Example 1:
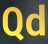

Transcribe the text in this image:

Qd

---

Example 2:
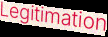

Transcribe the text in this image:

Legitimation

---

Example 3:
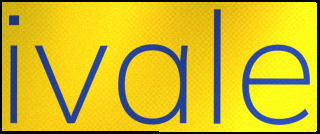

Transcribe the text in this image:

ivale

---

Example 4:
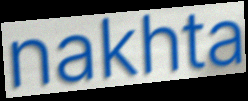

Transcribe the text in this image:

nakhta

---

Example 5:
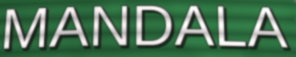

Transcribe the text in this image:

MANDALA